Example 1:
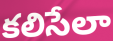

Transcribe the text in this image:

కలిసేలా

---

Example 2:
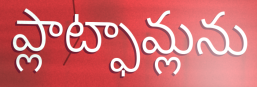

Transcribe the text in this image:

ప్లాట్ఫామ్లను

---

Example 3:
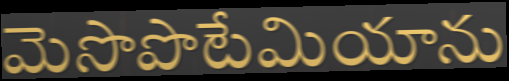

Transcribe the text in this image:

మెసొపొటేమియాను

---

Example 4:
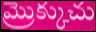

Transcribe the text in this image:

మ్రొక్కుచు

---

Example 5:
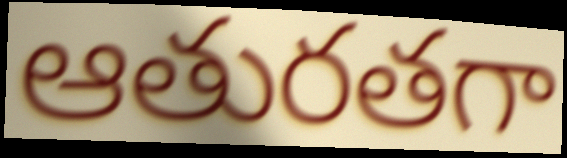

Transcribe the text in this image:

ఆతురతగా